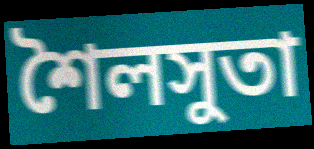
শৈলসুতা